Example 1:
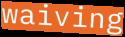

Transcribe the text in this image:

waiving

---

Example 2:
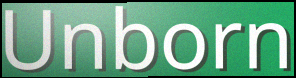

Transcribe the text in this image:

Unborn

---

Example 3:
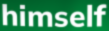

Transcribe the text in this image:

himself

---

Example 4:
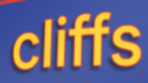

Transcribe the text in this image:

cliffs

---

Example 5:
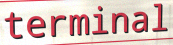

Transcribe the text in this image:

terminal